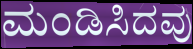
ಮಂಡಿಸಿದವು